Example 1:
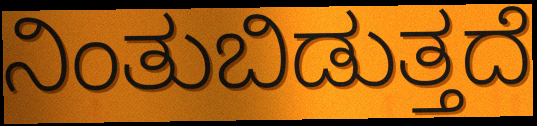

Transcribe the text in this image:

ನಿಂತುಬಿಡುತ್ತದೆ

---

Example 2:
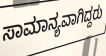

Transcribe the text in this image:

ಸಾಮಾನ್ಯವಾಗಿದ್ದರು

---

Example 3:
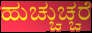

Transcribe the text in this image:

ಹುಚ್ಚುಚ್ಚರೆ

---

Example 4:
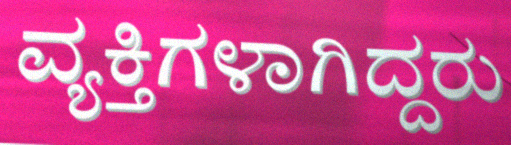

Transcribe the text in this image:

ವ್ಯಕ್ತಿಗಳಾಗಿದ್ದರು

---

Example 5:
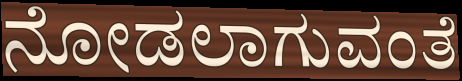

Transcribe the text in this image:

ನೋಡಲಾಗುವಂತೆ